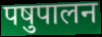
पषुपालन